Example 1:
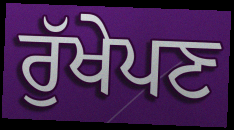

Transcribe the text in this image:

ਰੁੱਖੇਪਣ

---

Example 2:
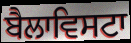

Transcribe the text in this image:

ਬੈਲਾਵਿਸਟਾ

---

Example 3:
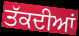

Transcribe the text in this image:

ਤੱਕਦੀਆਂ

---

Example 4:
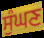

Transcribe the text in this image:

ਸੁੰਘਣ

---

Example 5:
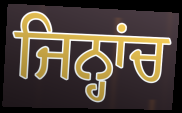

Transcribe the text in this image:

ਜਿਨ੍ਹਾਂਚ